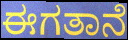
ಈಗತಾನೆ